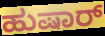
ಹುಷಾರ್